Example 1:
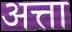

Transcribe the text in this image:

अत्ता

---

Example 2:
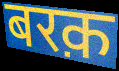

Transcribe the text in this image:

बरक़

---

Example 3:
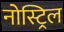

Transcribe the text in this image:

नोस्ट्रिल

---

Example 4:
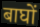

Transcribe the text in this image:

बाघों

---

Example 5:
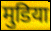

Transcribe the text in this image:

मुडिया